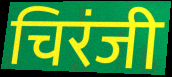
चिरंजी